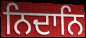
ਨਿਦਾਨਿ